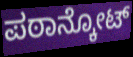
ಪಠಾನ್ಕೋಟ್